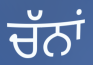
ਚੱਨਾਂ